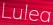
Lulea